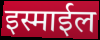
इस्माईल